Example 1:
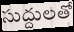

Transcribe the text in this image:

సుద్దులతో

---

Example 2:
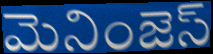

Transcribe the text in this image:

మెనింజెస్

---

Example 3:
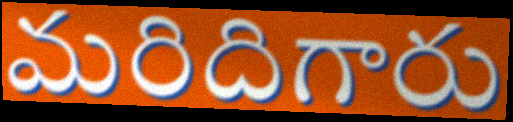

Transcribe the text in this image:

మరిదిగారు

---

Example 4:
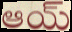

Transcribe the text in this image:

ఆయ్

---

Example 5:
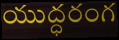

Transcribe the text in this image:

యుద్ధరంగ